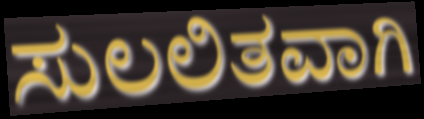
ಸುಲಲಿತವಾಗಿ